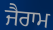
ਜੈਰਾਮ